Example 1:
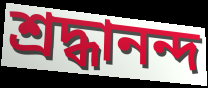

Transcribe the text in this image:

শ্ৰদ্ধানন্দ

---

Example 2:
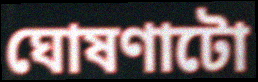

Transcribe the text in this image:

ঘোষণাটো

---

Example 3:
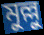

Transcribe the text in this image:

মুল্লু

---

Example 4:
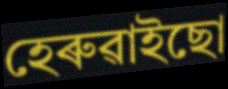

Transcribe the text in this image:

হেৰুৱাইছো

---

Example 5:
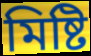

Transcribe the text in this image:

মিষ্টি